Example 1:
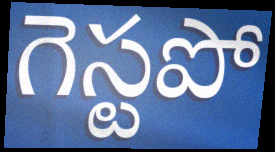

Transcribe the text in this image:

గెస్టపో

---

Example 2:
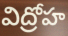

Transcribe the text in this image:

విద్రోహ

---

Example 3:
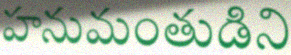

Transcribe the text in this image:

హనుమంతుడిని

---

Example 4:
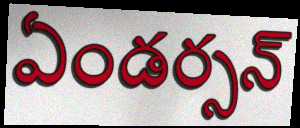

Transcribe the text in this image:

ఏండర్సన్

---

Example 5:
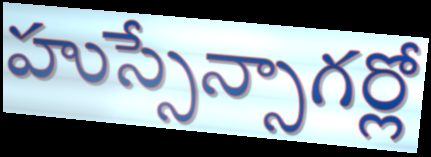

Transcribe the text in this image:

హుస్సేన్సాగర్లో